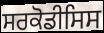
ਸਰਕੋਡੀਸਿਸ